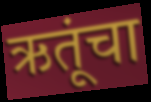
ऋतूंचा